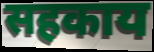
सहकाय